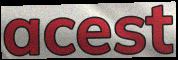
acest